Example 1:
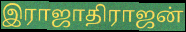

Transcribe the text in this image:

இராஜாதிராஜன்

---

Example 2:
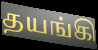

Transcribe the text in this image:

தயங்கி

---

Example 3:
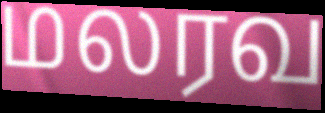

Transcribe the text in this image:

மலரவ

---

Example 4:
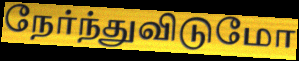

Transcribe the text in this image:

நேர்ந்துவிடுமோ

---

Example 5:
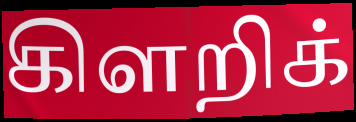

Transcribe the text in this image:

கிளறிக்